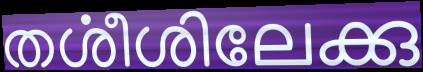
തൎശീശിലേക്കു